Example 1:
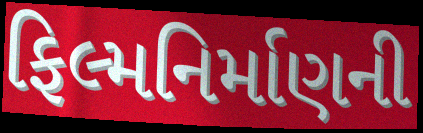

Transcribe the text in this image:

ફિલ્મનિર્માણની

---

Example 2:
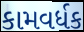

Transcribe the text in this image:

કામવર્ધક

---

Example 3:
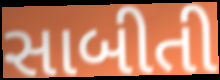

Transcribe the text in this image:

સાબીતી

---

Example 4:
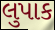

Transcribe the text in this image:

લુપાક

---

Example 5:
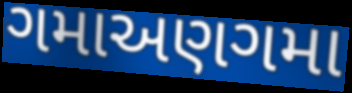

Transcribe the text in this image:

ગમાઅણગમા